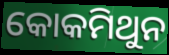
କୋକମିଥୁନ